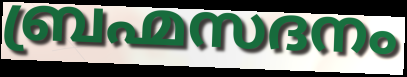
ബ്രഹ്മസദനം